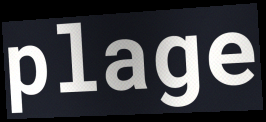
plage